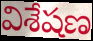
విశేషణ